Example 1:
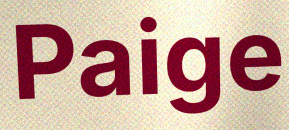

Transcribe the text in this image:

Paige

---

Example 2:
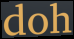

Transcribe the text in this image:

doh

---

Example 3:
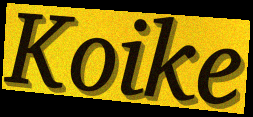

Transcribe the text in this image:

Koike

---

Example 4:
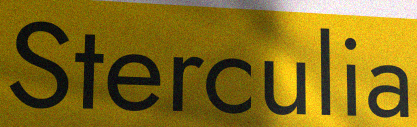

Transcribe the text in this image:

Sterculia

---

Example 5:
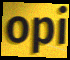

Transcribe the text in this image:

opi